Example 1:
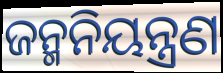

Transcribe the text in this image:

ଜନ୍ମନିୟନ୍ତ୍ରଣ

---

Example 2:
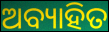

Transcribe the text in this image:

ଅବ୍ୟାହିତ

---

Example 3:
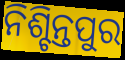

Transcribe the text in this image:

ନିଶ୍ଚିନ୍ତପୁର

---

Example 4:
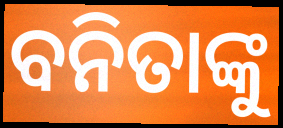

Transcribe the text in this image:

ବନିତାଙ୍କୁ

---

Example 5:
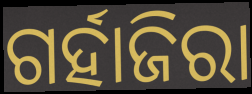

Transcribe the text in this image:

ଗର୍ହାଜିରା